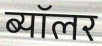
ब्यॉलर